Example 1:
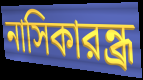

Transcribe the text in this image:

নাসিকারন্ধ্র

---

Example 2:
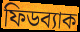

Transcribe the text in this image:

ফিডব্যাক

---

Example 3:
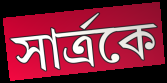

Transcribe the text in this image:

সার্ত্রকে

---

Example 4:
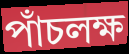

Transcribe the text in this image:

পাঁচলক্ষ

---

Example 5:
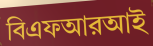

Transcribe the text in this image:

বিএফআরআই